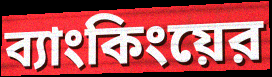
ব্যাংকিংয়ের